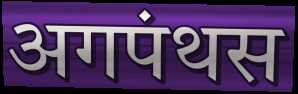
अगपंथस